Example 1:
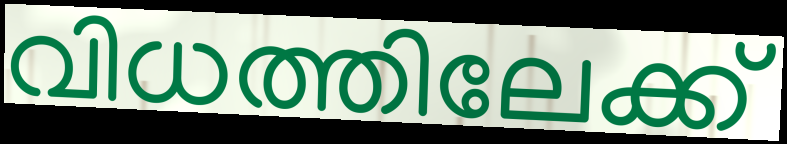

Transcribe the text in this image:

വിധത്തിലേക്ക്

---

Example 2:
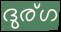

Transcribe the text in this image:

ദുര്ഗ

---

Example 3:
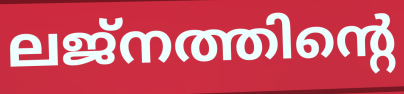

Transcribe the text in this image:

ലജ്നത്തിന്റെ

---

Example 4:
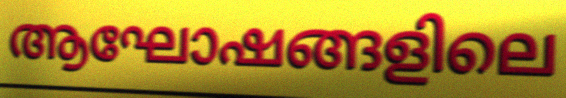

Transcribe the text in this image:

ആഘോഷങ്ങളിലെ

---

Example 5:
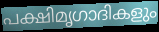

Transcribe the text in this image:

പക്ഷിമൃഗാദികളും